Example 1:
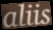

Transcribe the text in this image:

aliis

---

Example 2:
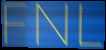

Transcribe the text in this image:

FNL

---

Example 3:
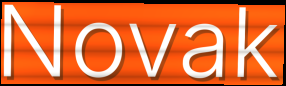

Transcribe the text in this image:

Novak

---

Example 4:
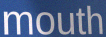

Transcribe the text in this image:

mouth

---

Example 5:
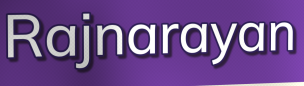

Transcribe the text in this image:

Rajnarayan